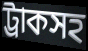
ট্রাকসহ